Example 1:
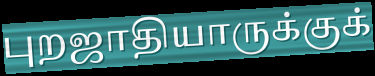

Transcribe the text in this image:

புறஜாதியாருக்குக்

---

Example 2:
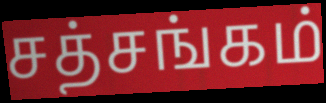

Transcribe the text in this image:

சத்சங்கம்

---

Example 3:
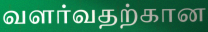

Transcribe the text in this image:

வளர்வதற்கான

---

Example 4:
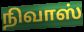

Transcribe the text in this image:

நிவாஸ்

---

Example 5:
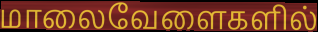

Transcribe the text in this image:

மாலைவேளைகளில்